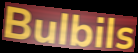
Bulbils